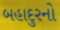
બહાદુરનો